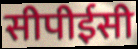
सीपीईसी